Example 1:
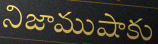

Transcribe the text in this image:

నిజాముషాకు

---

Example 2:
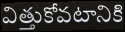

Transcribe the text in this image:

విత్తుకోవటానికి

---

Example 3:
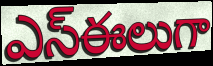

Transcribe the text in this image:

ఎస్ఈలుగా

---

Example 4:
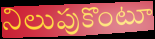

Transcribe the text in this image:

నిలుపుకొంటూ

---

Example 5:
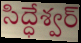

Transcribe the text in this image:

సిద్ధేశ్వర్